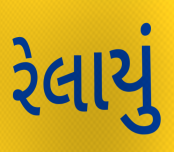
રેલાયું